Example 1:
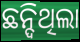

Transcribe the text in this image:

ଛନ୍ଦିଥିଲା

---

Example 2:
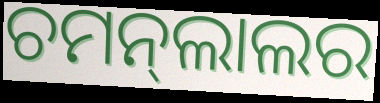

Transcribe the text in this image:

ଚମନ୍‍ଲାଲର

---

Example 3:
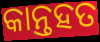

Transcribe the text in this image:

କାନ୍ତହତ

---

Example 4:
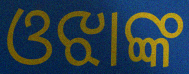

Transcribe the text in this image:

ଓଝାଙ୍କ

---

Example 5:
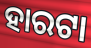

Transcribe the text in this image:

ହାରଟା